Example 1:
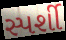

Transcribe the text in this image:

સ્પર્શી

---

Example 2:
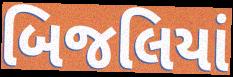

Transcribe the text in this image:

બિજલિયાં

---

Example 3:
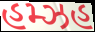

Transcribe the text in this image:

હમ્ઝહ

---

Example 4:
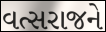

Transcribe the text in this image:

વત્સરાજને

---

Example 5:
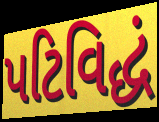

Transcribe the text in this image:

પટિવિદ્ધં